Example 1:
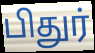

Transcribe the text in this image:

பிதுர்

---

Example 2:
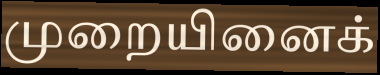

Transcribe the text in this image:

முறையினைக்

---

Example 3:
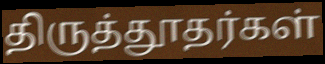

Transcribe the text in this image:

திருத்தூதர்கள்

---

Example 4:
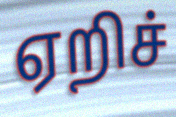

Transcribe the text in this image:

ஏறிச்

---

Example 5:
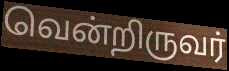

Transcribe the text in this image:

வென்றிருவர்